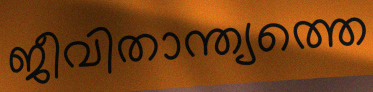
ജീവിതാന്ത്യത്തെ